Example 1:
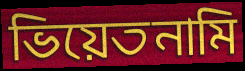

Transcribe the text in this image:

ভিয়েতনামি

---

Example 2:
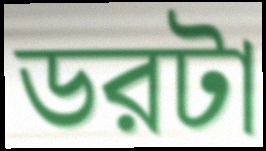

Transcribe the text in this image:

ডরটা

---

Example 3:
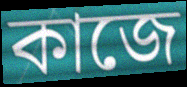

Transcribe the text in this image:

কাজে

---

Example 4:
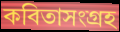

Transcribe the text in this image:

কবিতাসংগ্রহ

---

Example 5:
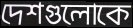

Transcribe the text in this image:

দেশগুলোকে